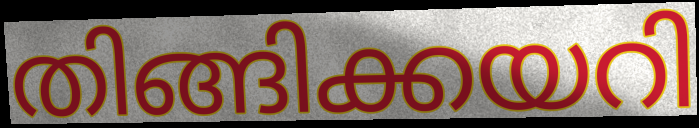
തിങ്ങിക്കയറി